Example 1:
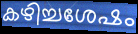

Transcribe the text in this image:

കഴിച്ചശേഷം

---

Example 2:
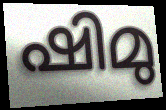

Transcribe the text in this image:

ഷിമു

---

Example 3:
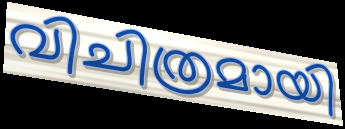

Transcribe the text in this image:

വിചിത്രമായി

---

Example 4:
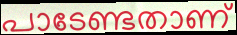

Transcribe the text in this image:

പാടേണ്ടതാണ്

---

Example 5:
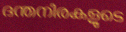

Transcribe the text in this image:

ദന്തനിരകളുടെ